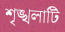
শৃঙ্খলাটি